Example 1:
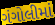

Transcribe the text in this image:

ગંગોલીમાં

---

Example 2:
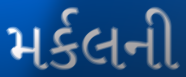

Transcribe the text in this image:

મર્કલની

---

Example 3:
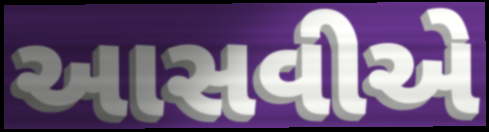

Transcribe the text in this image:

આસવીએ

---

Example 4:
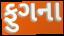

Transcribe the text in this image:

ફુગના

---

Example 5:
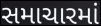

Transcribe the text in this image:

સમાચારમાં